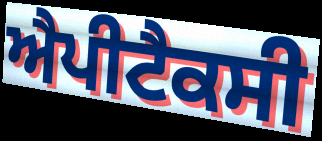
ਐਪੀਟੈਕਸੀ